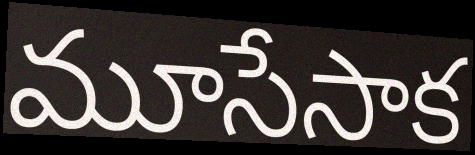
మూసేసాక